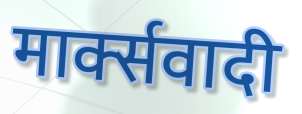
मार्क्सवादी